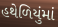
હથેળિયુંમાં